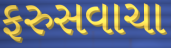
ફરુસવાચા